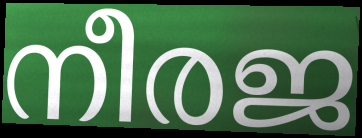
നീരജ